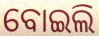
ବୋଇଲି